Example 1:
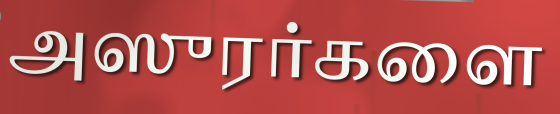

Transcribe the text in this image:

அஸுரர்களை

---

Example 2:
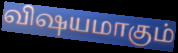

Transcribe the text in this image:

விஷயமாகும்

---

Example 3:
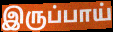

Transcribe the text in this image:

இருப்பாய்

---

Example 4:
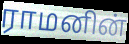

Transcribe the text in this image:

ராமனின்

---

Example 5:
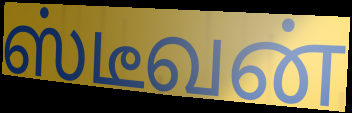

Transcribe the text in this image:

ஸ்டீவன்